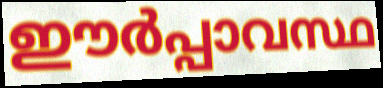
ഈർപ്പാവസ്ഥ